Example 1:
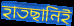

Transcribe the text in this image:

হাতছানিই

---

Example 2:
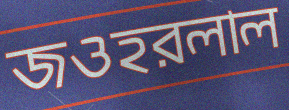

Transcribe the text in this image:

জওহরলাল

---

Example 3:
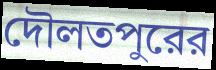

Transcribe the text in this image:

দৌলতপুরের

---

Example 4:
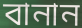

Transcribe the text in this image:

বানান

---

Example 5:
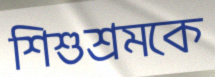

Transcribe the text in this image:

শিশুশ্রমকে